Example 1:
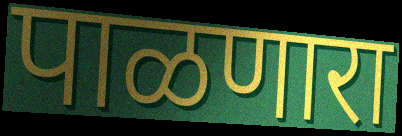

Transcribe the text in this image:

पाळणारा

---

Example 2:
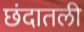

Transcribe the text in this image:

छंदातली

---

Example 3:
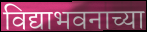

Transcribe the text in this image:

विद्याभवनाच्या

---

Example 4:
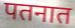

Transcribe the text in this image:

पतनात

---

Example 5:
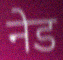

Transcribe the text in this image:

नेड